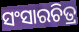
ସଂସାରଚିତ୍ର